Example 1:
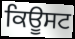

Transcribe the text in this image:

ਕਿਊਸਟ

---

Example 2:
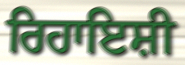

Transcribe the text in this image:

ਰਿਹਾਇਸ਼ੀ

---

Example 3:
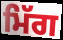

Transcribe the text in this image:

ਮਿੱਗ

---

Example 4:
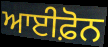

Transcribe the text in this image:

ਆਈਫ਼ੋਨ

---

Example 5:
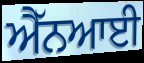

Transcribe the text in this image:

ਐੱਨਆਈ